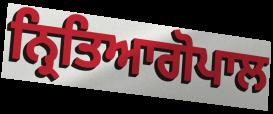
ਨ੍ਰਿਤਿਆਗੋਪਾਲ